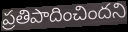
ప్రతిపాదించిందని